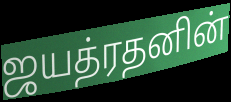
ஜயத்ரதனின்